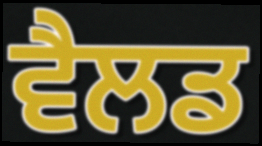
ਵੈਲਡ